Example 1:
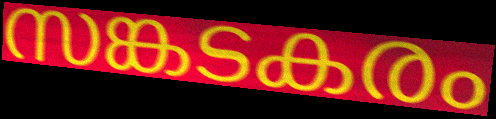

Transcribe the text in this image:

സങ്കടകരം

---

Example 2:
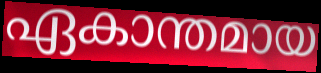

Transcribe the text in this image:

ഏകാന്തമായ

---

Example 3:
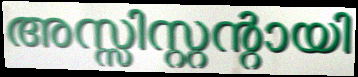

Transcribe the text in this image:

അസ്സിസ്റ്റന്റായി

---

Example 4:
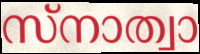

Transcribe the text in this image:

സ്നാത്വാ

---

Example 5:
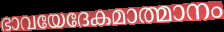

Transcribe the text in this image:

ഭാവയേദേകമാത്മാനം